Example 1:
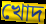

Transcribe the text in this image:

খোদ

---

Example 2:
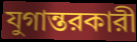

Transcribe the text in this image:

যুগান্তরকারী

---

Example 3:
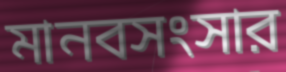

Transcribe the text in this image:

মানবসংসার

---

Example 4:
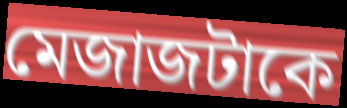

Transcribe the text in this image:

মেজাজটাকে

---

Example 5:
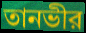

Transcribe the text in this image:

তানভীর